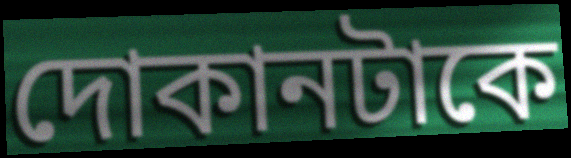
দোকানটাকে